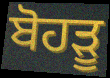
ਬੋਹੜੂ